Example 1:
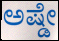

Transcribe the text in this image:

ಅಷ್ಡೇ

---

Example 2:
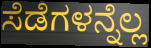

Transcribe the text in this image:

ಸೆಡೆಗಳನ್ನೆಲ್ಲ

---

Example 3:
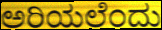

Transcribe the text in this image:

ಅರಿಯಲೆಂದು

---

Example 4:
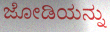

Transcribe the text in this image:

ಜೋಡಿಯನ್ನು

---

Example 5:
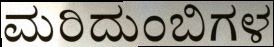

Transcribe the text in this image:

ಮರಿದುಂಬಿಗಳ